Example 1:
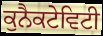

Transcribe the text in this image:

ਕੁਨੈਕਟੇਵਿਟੀ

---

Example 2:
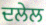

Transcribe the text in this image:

ਦਲੇਲ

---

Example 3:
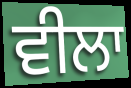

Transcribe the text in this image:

ਵੀਲਾ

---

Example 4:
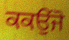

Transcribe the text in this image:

ਕਕਉਂਜੋ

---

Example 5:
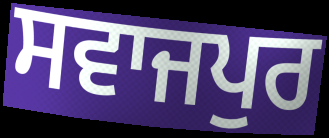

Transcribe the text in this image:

ਸਵਾਜਪੁਰ